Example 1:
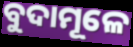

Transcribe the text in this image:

ବୁଦାମୂଳେ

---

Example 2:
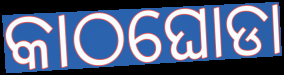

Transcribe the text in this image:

କାଠଘୋଡା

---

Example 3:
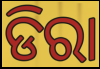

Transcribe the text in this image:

ଡିରା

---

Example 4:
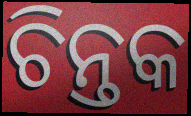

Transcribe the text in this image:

ଚିନ୍ତକ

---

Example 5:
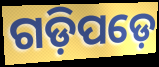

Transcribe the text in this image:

ଗଡ଼ିପଡ଼େ